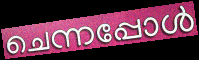
ചെന്നപ്പോൾ